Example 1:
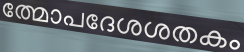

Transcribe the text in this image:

ത്മോപദേശശതകം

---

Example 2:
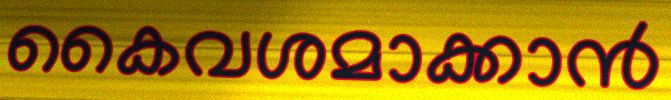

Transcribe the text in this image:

കൈവശമാക്കാൻ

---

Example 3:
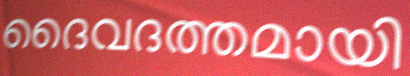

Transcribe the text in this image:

ദൈവദത്തമായി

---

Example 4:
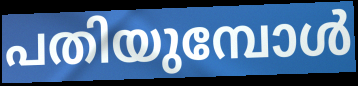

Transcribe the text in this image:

പതിയുമ്പോൾ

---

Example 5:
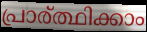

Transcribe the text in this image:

പ്രാര്ത്ഥിക്കാം